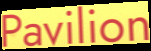
Pavilion